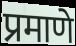
प्रमाणे